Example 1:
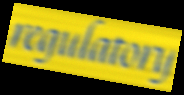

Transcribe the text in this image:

regulatory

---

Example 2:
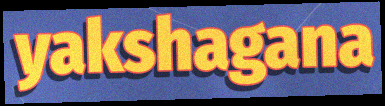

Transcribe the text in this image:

yakshagana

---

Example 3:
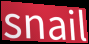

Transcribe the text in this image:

snail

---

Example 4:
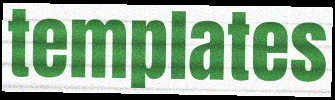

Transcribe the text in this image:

templates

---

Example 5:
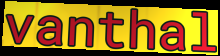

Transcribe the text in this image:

vanthal